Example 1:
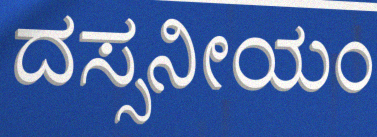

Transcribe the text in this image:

ದಸ್ಸನೀಯಂ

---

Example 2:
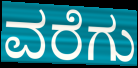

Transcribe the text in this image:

ವರೆಗು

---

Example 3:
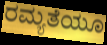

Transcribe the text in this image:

ರಮ್ಯತೆಯೂ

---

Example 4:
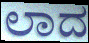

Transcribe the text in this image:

ಲಾದ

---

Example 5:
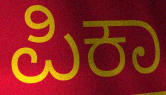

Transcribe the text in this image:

ಪಿಕಾ